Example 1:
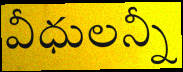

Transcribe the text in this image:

వీధులన్నీ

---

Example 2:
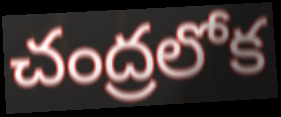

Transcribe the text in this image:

చంద్రలోక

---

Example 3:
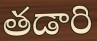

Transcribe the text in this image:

తడారి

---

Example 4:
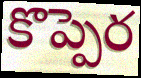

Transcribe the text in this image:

కొప్పెర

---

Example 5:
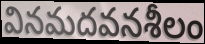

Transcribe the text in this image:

వినమదవనశీలం